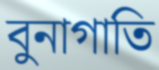
বুনাগাতি